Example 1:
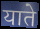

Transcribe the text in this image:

याते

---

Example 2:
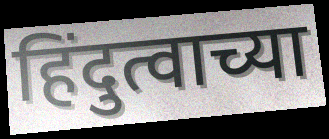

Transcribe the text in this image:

हिंदुत्वाच्या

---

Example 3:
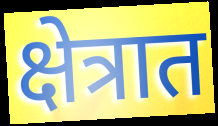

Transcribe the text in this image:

क्षेत्रात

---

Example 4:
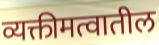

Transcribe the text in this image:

व्यक्तीमत्वातील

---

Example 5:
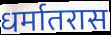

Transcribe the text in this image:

धर्मातरास